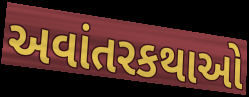
અવાંતરકથાઓ